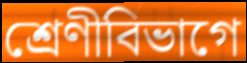
শ্রেণীবিভাগে